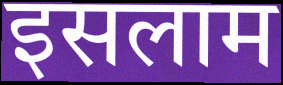
इसलाम